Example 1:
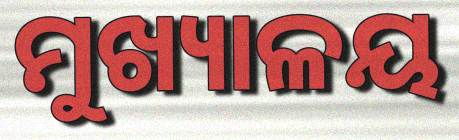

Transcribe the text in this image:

ମୁଖ୍ୟାଳୟ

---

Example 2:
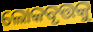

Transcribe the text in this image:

ଲୋକବୃତ୍ତକୁ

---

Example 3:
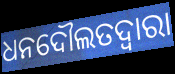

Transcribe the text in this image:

ଧନଦୌଲତଦ୍ଵାରା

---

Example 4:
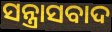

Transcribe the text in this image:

ସନ୍ତ୍ରାସବାଦ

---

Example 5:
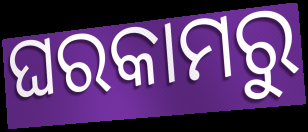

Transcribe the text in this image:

ଘରକାମରୁ